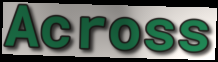
Across